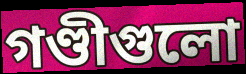
গণ্ডীগুলো